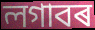
লগাবৰ